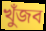
খুঁজব